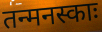
तन्मनस्काः